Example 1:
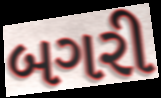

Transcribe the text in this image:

બગરી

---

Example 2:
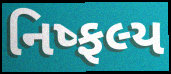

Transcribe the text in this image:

નિષ્ફલ્ય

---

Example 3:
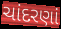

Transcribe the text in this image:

ચાંદરણાં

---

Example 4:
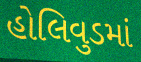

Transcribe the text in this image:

હોલિવુડમાં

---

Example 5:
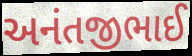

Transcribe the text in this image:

અનંતજીભાઈ